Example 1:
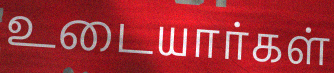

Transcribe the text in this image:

உடையார்கள்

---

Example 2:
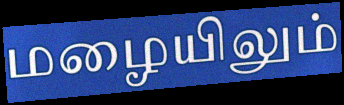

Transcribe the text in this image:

மழையிலும்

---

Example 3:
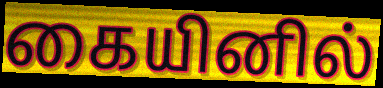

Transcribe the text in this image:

கையினில்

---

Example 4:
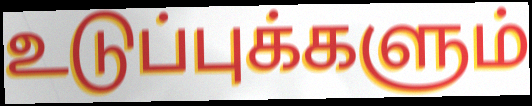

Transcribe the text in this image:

உடுப்புக்களும்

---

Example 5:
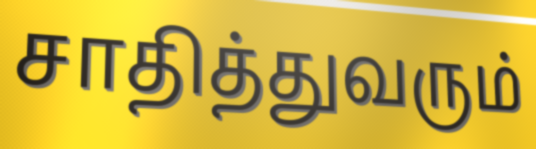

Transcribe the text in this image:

சாதித்துவரும்